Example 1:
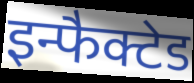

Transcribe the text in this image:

इन्फैक्टेड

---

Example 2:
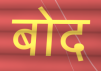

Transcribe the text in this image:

बोद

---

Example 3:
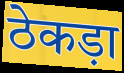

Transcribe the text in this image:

ठेकड़ा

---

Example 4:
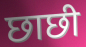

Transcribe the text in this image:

छाछी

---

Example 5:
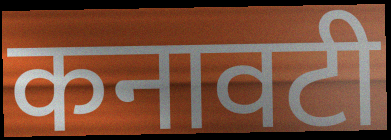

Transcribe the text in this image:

कनावटी